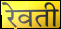
रेवती